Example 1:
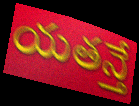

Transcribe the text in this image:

యతన్తే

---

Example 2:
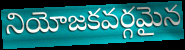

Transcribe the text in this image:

నియోజకవర్గమైన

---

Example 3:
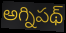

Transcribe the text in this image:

అగ్నిపథ్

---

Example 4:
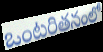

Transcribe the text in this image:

ఒంటరితనంలో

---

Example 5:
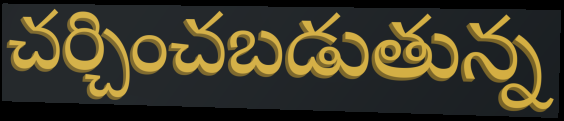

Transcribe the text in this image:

చర్చించబడుతున్న